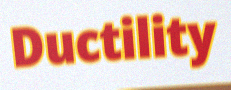
Ductility